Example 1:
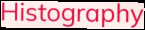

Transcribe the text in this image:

Histography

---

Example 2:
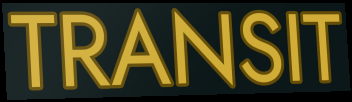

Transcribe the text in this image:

TRANSIT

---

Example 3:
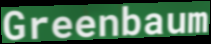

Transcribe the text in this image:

Greenbaum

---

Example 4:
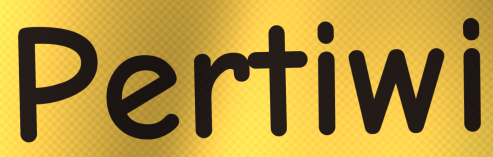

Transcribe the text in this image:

Pertiwi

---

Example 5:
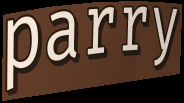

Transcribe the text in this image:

parry